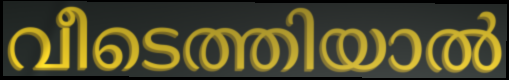
വീടെത്തിയാൽ